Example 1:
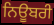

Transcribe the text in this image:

ਨਿਊਬਰੀ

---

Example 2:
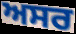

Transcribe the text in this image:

ਅਸਰ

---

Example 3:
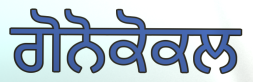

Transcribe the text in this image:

ਗੋਨੋਕੋਕਲ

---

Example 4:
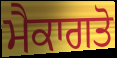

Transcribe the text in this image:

ਮੈਕਾਗਤੋ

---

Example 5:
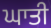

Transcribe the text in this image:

ਘਾਤੀ